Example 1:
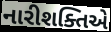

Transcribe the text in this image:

નારીશક્તિએ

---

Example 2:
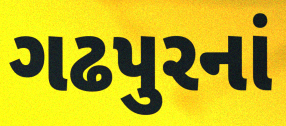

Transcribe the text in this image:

ગઢપુરનાં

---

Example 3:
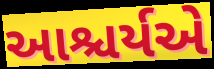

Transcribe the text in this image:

આશ્ચર્યએ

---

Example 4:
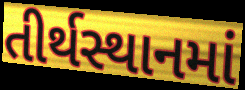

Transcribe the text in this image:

તીર્થસ્થાનમાં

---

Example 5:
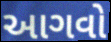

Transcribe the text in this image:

આગવો